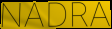
NADRA